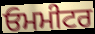
ਓਮਮੀਟਰ